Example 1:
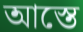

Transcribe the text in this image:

আস্তে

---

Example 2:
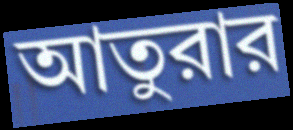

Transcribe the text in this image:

আতুরার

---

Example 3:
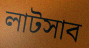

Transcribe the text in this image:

লাটসাব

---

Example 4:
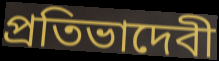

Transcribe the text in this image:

প্রতিভাদেবী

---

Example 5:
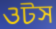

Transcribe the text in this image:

ওটস